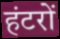
हंटरों